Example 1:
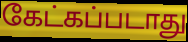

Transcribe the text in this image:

கேட்கப்படாது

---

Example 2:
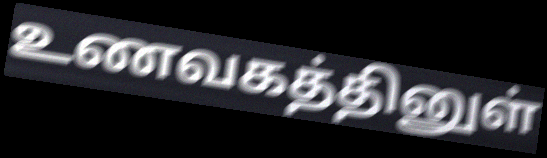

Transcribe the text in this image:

உணவகத்தினுள்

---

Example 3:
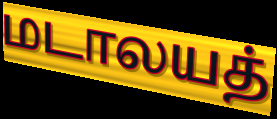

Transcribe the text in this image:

மடாலயத்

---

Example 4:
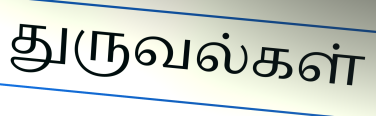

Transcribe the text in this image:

துருவல்கள்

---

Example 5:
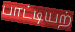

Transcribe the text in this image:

பாட்டியற்